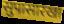
सुपासारखा